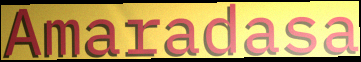
Amaradasa